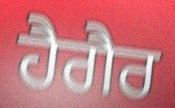
ਹੈਗੈਰ